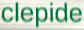
clepide